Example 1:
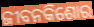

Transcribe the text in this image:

ଜୀବନକିଶୋର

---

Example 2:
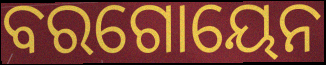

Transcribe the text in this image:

ବରଗୋୟେନ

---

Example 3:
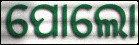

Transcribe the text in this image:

ପୋଲୋ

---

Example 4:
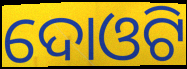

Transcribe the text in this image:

ଦୋଓଟି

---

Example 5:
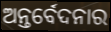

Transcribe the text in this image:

ଅନ୍ତର୍ବେଦନାର